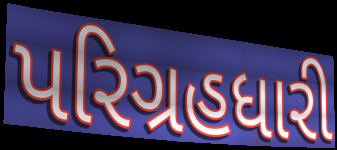
પરિગ્રહધારી